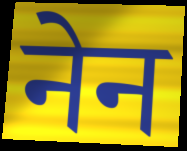
नेन